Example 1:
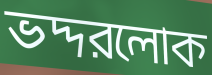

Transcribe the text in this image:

ভদ্দরলোক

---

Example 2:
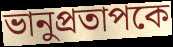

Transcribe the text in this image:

ভানুপ্রতাপকে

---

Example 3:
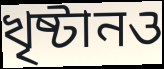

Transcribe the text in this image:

খৃষ্টানও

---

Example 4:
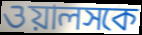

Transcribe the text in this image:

ওয়ালসকে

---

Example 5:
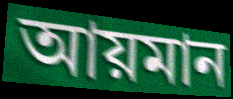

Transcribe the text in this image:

আয়মান